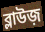
ব্লাউজ়